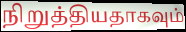
நிறுத்தியதாகவும்